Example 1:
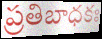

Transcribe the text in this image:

ప్రతిబాధకః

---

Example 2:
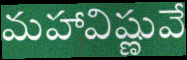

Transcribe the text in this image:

మహావిష్ణువే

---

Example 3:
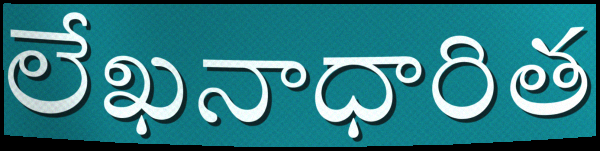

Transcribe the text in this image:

లేఖనాధారిత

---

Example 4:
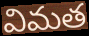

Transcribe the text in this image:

విమత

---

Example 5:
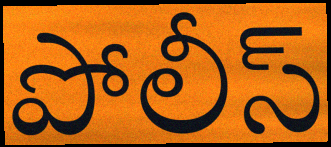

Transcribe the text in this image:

పోలీస్